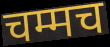
चम्मच